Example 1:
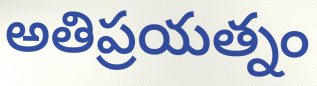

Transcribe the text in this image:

అతిప్రయత్నం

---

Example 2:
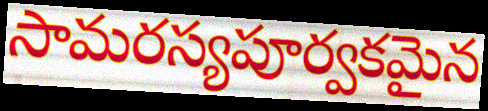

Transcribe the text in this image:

సామరస్యపూర్వకమైన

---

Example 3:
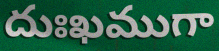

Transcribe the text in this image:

దుఃఖముగా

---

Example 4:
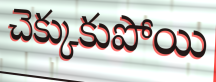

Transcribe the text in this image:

చెక్కుకుపోయి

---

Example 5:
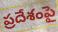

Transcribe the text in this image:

ప్రదేశంపై